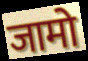
जामो